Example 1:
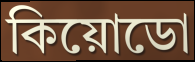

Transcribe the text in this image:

কিয়োডো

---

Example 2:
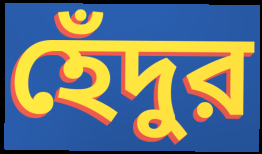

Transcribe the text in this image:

হেঁদুর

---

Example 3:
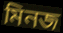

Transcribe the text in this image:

মিনজ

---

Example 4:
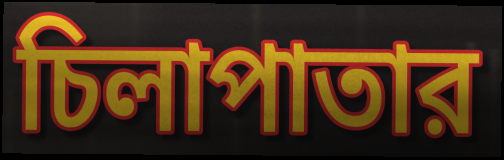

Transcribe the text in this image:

চিলাপাতার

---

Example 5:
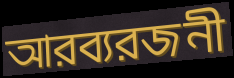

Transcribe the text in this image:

আরব্যরজনী